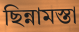
ছিন্নামস্তা